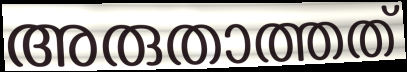
അരുതാത്തത്